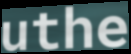
uthe